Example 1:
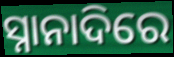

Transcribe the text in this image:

ସ୍ନାନାଦିରେ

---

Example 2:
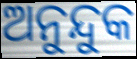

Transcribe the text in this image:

ଅନୁନ୍ଦୁକ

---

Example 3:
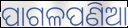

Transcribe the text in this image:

ପାଗଳପଣିଆ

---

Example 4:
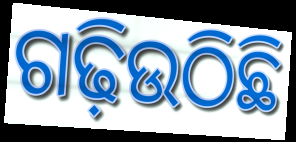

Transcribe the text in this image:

ଗଢ଼ିଉଠିଛି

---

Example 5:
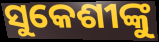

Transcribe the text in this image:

ସୁକେଶୀଙ୍କୁ